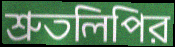
শ্রুতলিপির